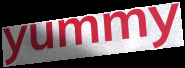
yummy